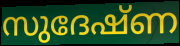
സുദേഷ്ണ